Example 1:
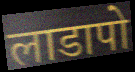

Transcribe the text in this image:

लाडापो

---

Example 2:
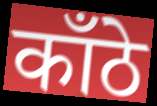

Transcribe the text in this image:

काँठे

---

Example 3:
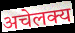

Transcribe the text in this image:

अचेलक्य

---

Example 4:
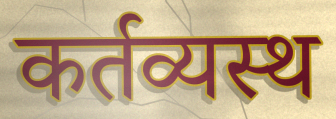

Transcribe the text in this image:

कर्तव्यस्थ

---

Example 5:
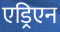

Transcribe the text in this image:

एड्रिएन